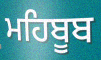
ਮਹਿਬੂਬ